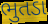
ભુતડા